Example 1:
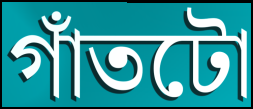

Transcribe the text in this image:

গাঁতটো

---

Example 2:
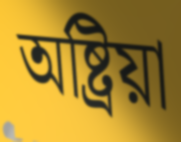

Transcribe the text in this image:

অষ্ট্ৰিয়া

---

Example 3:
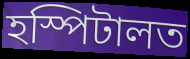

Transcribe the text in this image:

হস্পিটালত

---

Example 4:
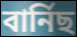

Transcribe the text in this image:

বাৰ্নিছ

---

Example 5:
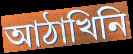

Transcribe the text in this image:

আঠাখিনি